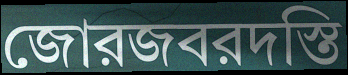
জোরজবরদস্তি